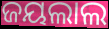
ଜୟଲାଲ